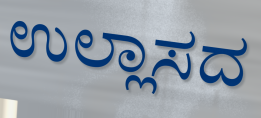
ಉಲ್ಲಾಸದ